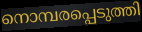
നൊമ്പരപ്പെടുത്തി